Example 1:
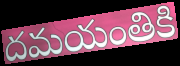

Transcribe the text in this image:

దమయంతికి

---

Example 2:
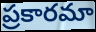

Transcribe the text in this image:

ప్రకారమా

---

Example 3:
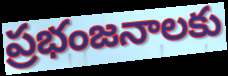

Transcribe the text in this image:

ప్రభంజనాలకు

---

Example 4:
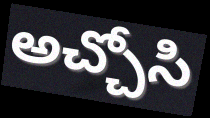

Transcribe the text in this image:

అచ్చోసి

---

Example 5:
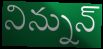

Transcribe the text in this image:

నిన్నున్